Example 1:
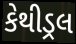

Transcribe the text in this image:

કેથીડ્રલ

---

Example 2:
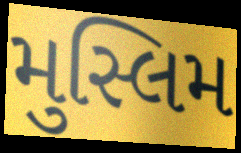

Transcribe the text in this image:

મુસ્લિમ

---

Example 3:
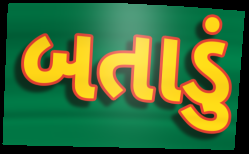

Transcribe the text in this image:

બતાડું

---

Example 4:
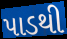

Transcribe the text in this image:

પાડથી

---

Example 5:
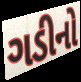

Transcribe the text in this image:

ગડીનો